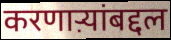
करणाऱ्‍यांबद्दल